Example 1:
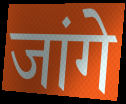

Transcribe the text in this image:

जांगे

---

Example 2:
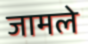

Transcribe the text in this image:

जामले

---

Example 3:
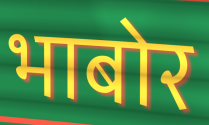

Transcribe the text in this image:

भाबोर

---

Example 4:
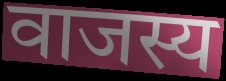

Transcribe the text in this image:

वाजस्य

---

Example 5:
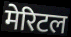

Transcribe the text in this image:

मेरिटल